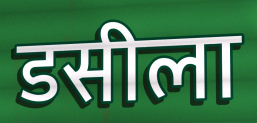
डसीला